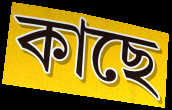
কাছে